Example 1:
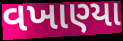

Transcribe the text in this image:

વખાણ્યા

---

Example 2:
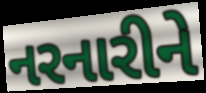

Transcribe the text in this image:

નરનારીને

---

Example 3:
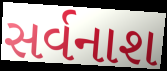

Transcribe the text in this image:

સર્વનાશ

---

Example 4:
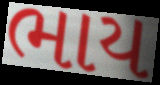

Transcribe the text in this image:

ભાય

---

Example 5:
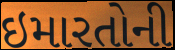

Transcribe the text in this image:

ઇમારતોની